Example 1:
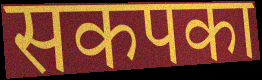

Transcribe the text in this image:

सकपका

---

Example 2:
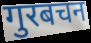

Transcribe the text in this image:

गुरबचन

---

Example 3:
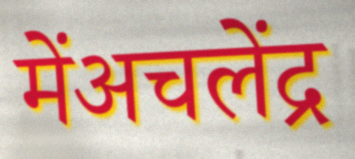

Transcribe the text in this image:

मेंअचलेंद्र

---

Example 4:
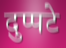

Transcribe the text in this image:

दुप्पटे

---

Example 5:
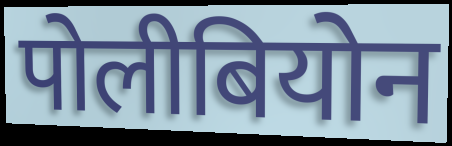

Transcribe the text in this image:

पोलीबियोन